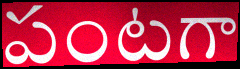
పంటగా